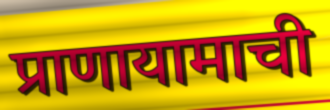
प्राणायामाची